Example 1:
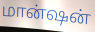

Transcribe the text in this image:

மான்ஷன்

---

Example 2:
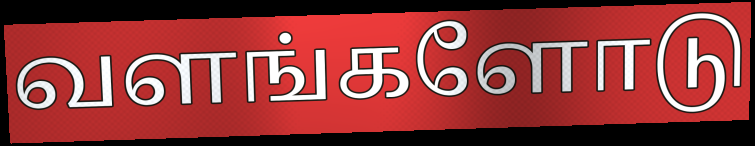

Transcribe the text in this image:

வளங்களோடு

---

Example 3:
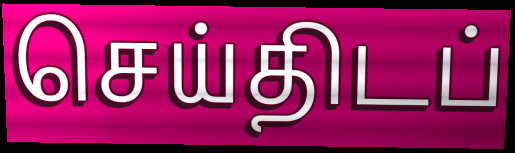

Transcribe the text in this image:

செய்திடப்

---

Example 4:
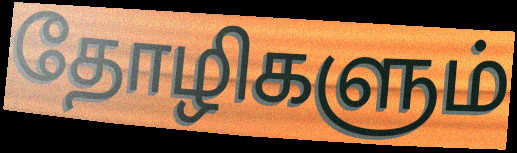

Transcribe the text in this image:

தோழிகளும்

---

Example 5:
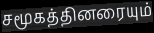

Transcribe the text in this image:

சமூகத்தினரையும்